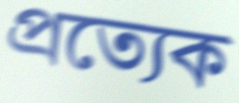
প্রত্যেক